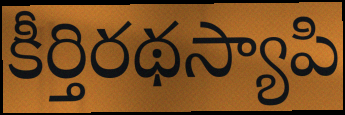
కీర్తిరథస్యాపి